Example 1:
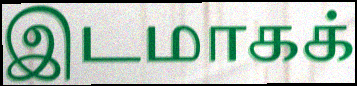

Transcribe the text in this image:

இடமாகக்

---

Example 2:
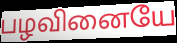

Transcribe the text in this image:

பழவினையே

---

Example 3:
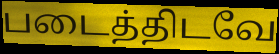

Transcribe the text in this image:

படைத்திடவே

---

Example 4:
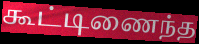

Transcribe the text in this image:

கூட்டிணைந்த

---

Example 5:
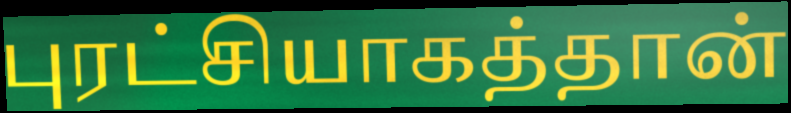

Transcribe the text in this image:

புரட்சியாகத்தான்